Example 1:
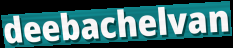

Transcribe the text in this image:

deebachelvan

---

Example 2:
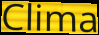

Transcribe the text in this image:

Clima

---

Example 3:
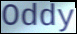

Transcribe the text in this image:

Oddy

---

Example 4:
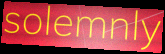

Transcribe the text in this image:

solemnly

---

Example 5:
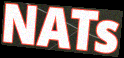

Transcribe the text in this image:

NATs